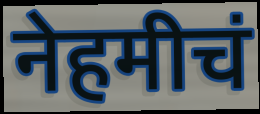
नेहमीचं